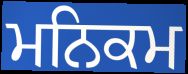
ਮਨਿਕਮ